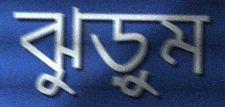
ঝুড়ুম